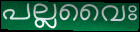
പല്ലവൈഃ